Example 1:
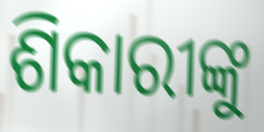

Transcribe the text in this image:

ଶିକାରୀଙ୍କୁ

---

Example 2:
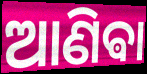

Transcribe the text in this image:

ଆଣିଵା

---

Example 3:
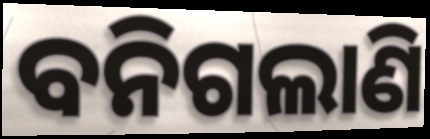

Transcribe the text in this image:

ବନିଗଲାଣି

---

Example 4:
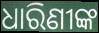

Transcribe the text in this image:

ଧାରିଣୀଙ୍କ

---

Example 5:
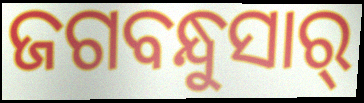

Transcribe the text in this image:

ଜଗବନ୍ଧୁସାର୍